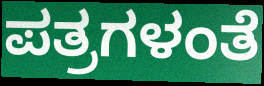
ಪತ್ರಗಳಂತೆ